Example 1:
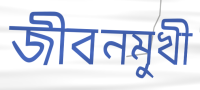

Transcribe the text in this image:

জীবনমুখী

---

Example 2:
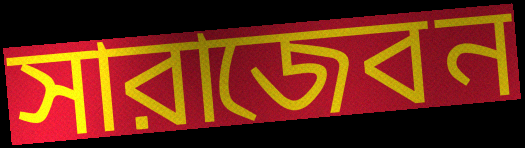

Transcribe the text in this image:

সারাজেবন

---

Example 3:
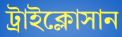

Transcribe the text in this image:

ট্রাইক্লোসান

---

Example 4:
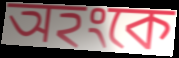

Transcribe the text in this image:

অহংকে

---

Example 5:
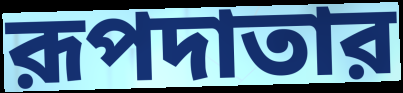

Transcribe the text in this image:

রূপদাতার